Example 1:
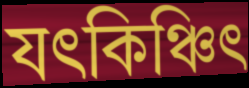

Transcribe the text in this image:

যৎকিঞ্চিৎ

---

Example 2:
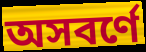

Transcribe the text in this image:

অসবর্ণে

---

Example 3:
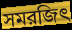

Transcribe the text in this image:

সমরজিৎ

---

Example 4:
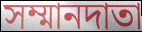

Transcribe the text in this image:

সম্মানদাতা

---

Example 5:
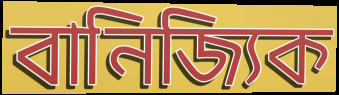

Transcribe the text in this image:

বানিজ্যিক